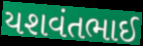
યશવંતભાઈ